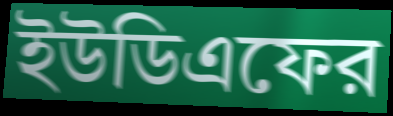
ইউডিএফের